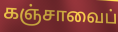
கஞ்சாவைப்